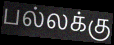
பல்லக்கு